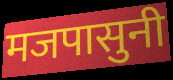
मजपासुनी